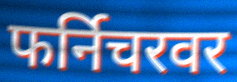
फर्निचरवर